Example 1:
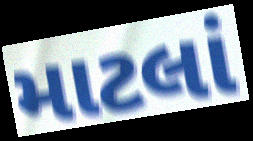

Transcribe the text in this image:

માટલાં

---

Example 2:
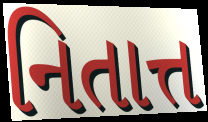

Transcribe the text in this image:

નિતાત્ત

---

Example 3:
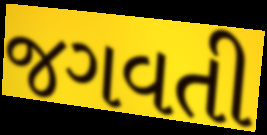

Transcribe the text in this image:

જગવતી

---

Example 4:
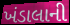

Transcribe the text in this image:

ખંડાલાની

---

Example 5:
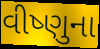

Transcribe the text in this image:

વીષ્ણુના